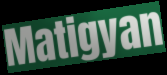
Matigyan